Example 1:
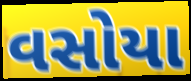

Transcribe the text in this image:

વસોયા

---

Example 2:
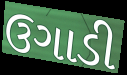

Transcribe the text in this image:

ઉગાડી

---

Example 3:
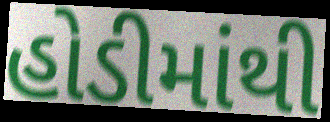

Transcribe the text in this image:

હોડીમાંથી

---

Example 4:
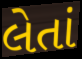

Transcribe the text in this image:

લેતાં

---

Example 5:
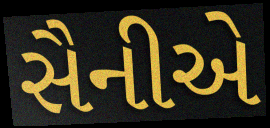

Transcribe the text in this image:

સૈનીએ